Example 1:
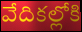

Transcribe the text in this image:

వేదికల్లోకి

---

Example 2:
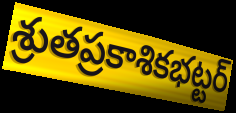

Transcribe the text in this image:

శ్రుతప్రకాశికభట్టర్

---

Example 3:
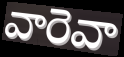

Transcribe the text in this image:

వారెవా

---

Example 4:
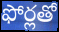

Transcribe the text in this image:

ఫోర్లతో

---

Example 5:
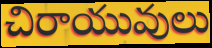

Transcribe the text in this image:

చిరాయువులు